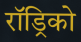
रॉड्रिको